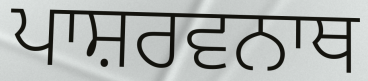
ਪਾਸ਼ਰਵਨਾਥ